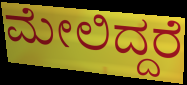
ಮೇಲಿದ್ದರೆ